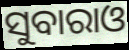
ସୁବାରାଓ